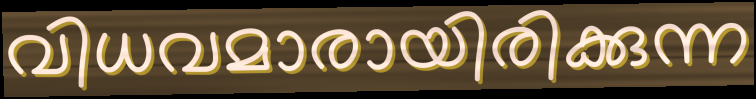
വിധവമാരായിരിക്കുന്ന